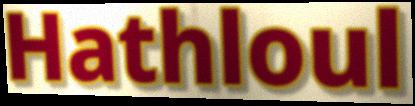
Hathloul